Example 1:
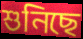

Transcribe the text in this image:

শুনিছে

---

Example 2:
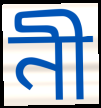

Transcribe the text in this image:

নী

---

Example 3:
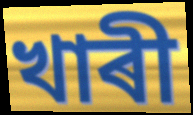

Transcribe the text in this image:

খাৰী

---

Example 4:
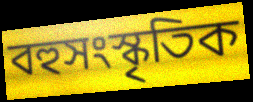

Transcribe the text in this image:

বহুসংস্কৃতিক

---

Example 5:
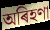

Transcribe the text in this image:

অৰিহণা